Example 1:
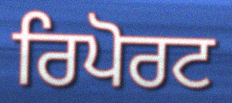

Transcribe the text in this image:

ਰਿਪੋਰਟ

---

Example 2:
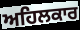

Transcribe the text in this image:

ਅਹਿਲਕਾਰ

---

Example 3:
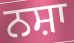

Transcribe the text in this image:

ਨਸ਼ਾ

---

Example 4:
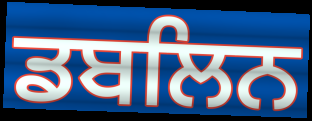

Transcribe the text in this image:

ਡਬਲਿਨ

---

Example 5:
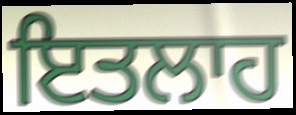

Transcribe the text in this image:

ਇਤਲਾਹ